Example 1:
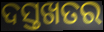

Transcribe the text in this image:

ଦସ୍ତଖତର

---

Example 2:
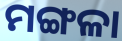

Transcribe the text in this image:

ମଙ୍ଗଳା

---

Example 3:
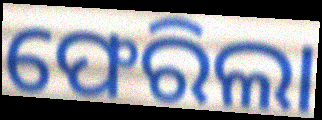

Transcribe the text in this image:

ଫେରିଲା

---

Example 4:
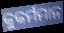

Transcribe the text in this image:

କୁକର୍ମମାନ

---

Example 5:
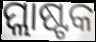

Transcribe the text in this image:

ପ୍ଲାଷ୍ଟକ